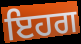
ਇਹਗ